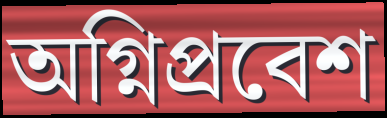
অগ্নিপ্রবেশ